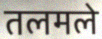
तलमले